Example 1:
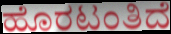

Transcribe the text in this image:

ಹೊರಟಂತಿದೆ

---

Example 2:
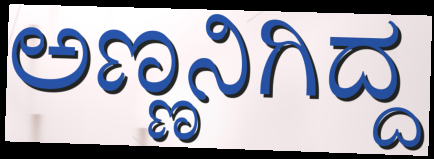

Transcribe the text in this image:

ಅಣ್ಣನಿಗಿದ್ದ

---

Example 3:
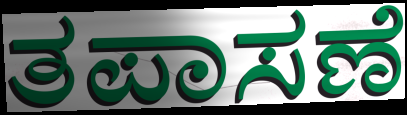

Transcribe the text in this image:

ತಪಾಸಣೆ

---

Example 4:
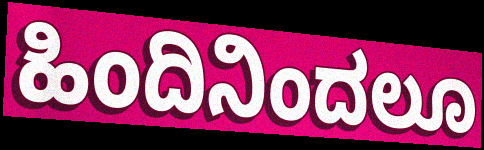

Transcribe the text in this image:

ಹಿಂದಿನಿಂದಲೂ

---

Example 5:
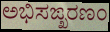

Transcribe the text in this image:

ಅಭಿಸಙ್ಖರಣಂ